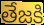
తేజకి